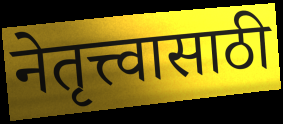
नेतृत्त्वासाठी